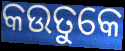
କଉତୁକେ